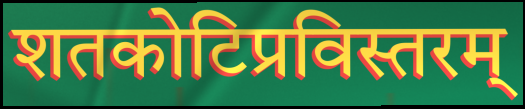
शतकोटिप्रविस्तरम्